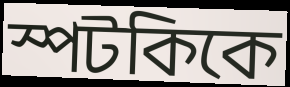
স্পটকিকে